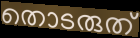
തൊടരുത്